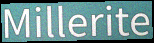
Millerite